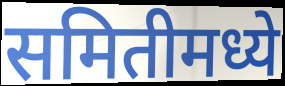
समितीमध्ये